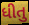
ધીતુ